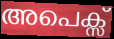
അപെക്സ്